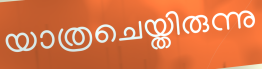
യാത്രചെയ്തിരുന്നു